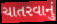
ચાતરવાનું